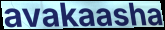
avakaasha